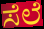
ಸೆಲೆ